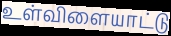
உள்விளையாட்டு